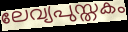
ലേവ്യപുസ്തകം